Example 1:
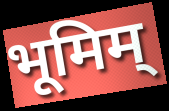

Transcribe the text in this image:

भूमिम्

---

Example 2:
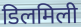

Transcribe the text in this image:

डिलमिली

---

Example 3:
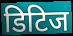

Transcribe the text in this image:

डिटिज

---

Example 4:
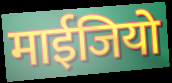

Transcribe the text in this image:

माईजियो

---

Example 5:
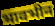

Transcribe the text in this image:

भावभीन